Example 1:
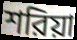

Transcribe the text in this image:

শরিয়া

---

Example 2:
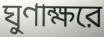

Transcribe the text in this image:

ঘুণাক্ষরে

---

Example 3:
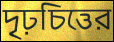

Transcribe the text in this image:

দৃঢ়চিত্তের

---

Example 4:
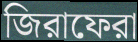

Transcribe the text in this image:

জিরাফেরা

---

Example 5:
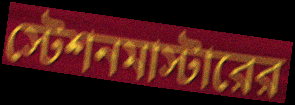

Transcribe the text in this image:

স্টেশনমাস্টারের